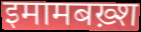
इमामबख़्श